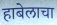
हाबेलाचा